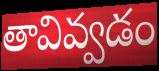
తావివ్వడం